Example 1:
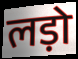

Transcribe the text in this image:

लड़ो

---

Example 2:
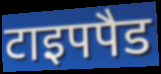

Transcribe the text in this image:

टाइपपैड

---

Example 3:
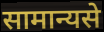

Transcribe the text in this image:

सामान्यसे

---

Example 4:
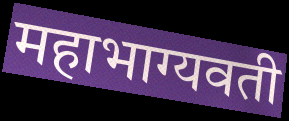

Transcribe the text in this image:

महाभाग्यवती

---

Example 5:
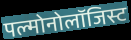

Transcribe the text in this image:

पल्मोनोलॉजिस्ट